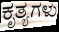
ಕೃತ್ಯಗಳು